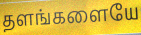
தளங்களையே